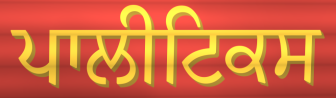
ਪਾਲੀਟਿਕਸ